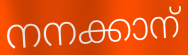
നനക്കാന്